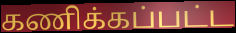
கணிக்கப்பட்ட